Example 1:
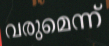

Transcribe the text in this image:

വരുമെന്ന്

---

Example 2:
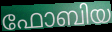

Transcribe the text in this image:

ഫോബിയ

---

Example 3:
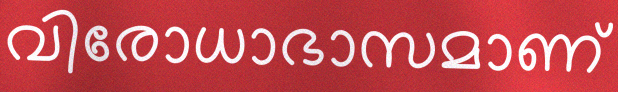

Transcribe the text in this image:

വിരോധാഭാസമാണ്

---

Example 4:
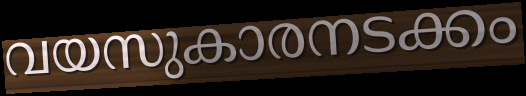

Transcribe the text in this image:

വയസുകാരനടക്കം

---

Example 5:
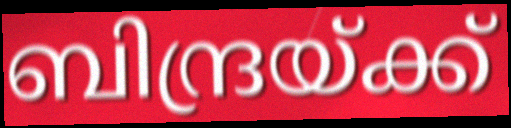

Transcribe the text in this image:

ബിന്ദ്രയ്ക്ക്